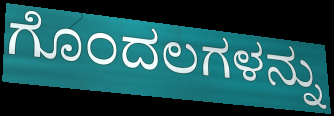
ಗೊಂದಲಗಳನ್ನು